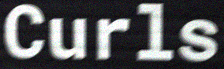
Curls